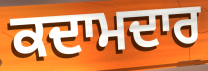
ਕਦਾਮਦਾਰ